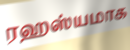
ரஹஸ்யமாக